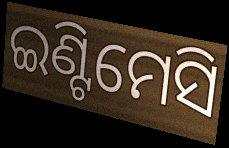
ଇଣ୍ଟିମେସି